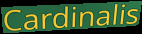
Cardinalis